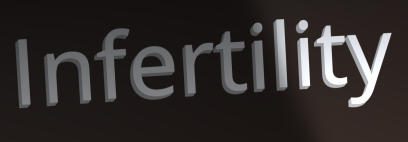
Infertility